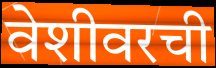
वेशीवरची